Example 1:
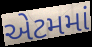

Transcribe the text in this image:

એટમમાં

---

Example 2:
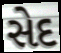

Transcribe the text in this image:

સેદ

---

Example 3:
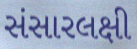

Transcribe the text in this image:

સંસારલક્ષી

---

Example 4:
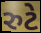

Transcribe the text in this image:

રુટે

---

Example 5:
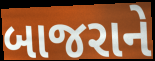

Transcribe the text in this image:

બાજરાને